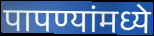
पापण्यांमध्ये